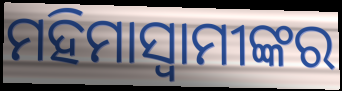
ମହିମାସ୍ୱାମୀଙ୍କର